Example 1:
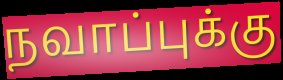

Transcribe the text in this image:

நவாப்புக்கு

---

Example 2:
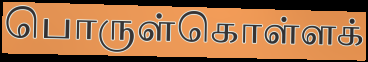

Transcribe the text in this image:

பொருள்கொள்ளக்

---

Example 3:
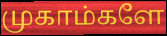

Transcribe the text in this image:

முகாம்களே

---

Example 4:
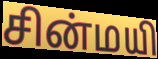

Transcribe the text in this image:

சின்மயி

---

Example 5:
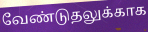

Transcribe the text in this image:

வேண்டுதலுக்காக